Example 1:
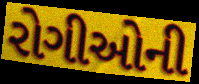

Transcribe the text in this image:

રોગીઓની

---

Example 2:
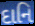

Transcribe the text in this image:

દાનિ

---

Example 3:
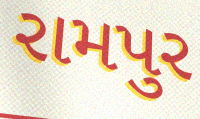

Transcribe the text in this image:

રામપુર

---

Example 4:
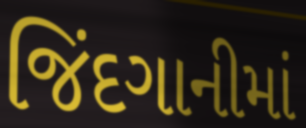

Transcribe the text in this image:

જિંદગાનીમાં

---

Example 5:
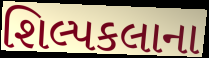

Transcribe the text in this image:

શિલ્પકલાના